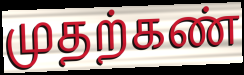
முதற்கண்